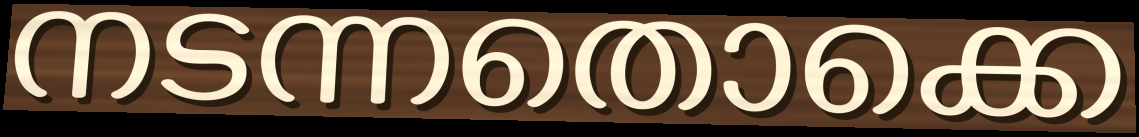
നടന്നതൊക്കെ